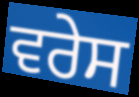
ਵਰੇਸ